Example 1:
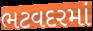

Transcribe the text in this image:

ભટવદરમાં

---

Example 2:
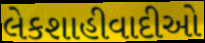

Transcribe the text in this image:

લેકશાહીવાદીઓ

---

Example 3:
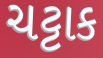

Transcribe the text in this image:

ચટ્ટાક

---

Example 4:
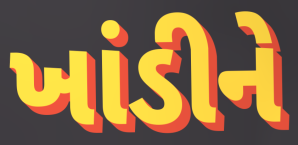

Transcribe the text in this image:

ખાંડીને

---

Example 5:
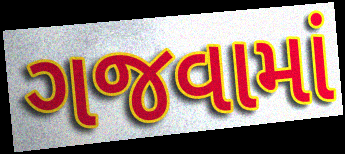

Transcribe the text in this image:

ગજવામાં